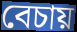
বেচায়